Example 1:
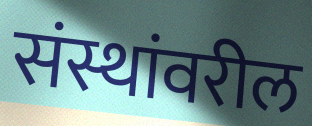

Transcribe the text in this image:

संस्थांवरील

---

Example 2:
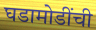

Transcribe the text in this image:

घडामोडींची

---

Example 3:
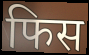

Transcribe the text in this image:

फिस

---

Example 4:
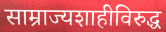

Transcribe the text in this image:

साम्राज्यशाहीविरुद्ध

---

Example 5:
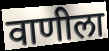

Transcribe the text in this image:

वाणीला